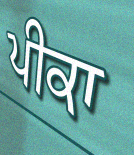
ਪੀਕਾ